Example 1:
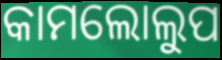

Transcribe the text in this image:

କାମଲୋଲୁପ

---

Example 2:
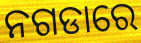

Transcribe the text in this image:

ନଗଡାରେ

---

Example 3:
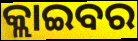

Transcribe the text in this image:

କ୍ଲାଇବର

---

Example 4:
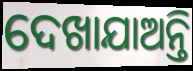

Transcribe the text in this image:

ଦେଖାଯାଅନ୍ତି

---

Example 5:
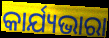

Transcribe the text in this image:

କାର୍ଯ୍ୟଭାରା